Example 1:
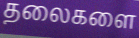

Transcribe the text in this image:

தலைகளை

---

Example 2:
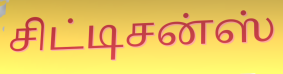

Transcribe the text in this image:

சிட்டிசன்ஸ்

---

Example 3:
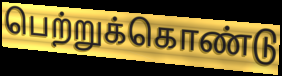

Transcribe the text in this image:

பெற்றுக்கொண்டு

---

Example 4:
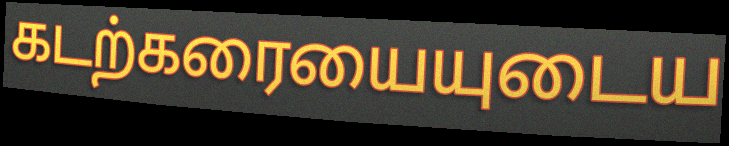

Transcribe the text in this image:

கடற்கரையையுடைய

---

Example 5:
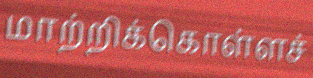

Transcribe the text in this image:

மாற்றிக்கொள்ளச்